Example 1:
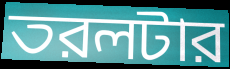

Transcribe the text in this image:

তরলটার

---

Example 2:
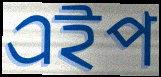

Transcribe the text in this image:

এইপ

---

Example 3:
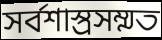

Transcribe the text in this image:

সর্বশাস্ত্রসম্মত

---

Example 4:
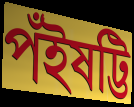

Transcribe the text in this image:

পঁইষট্টি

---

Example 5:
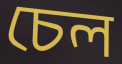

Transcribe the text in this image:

চেল